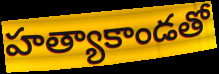
హత్యాకాండతో